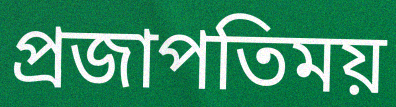
প্রজাপতিময়